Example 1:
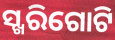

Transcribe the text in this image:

ସ୍ଖରିଗୋଟି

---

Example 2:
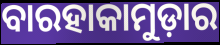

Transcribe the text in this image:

ବାରହାକାମୁଡ଼ାର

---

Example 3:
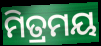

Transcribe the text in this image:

ମିତ୍ରମୟ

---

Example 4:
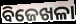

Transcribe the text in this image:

ବିଜେଖଳା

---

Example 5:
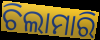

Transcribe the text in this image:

ଚିଲାମାରି